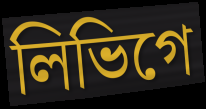
লিভিগে